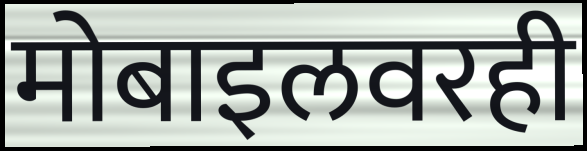
मोबाइलवरही